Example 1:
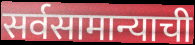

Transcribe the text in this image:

सर्वसामान्याची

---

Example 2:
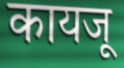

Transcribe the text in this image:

कायजू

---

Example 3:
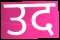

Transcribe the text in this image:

उद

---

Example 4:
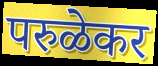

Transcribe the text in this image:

परुळेकर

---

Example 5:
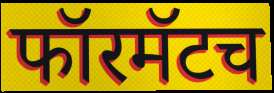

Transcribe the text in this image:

फॉरमॅटच